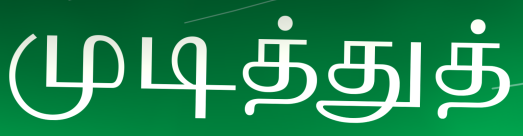
முடித்துத்